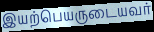
இயற்பெயருடையவர்